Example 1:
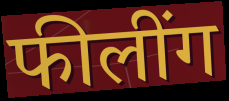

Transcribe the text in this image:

फीलींग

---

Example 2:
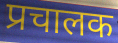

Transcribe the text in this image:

प्रचालक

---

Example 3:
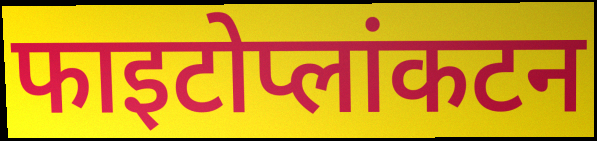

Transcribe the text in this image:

फाइटोप्लांकटन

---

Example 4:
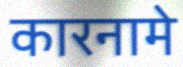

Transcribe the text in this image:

कारनामे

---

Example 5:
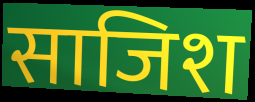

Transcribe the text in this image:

साजिश